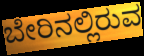
ಬೇರಿನಲ್ಲಿರುವ